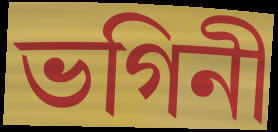
ভগিনী